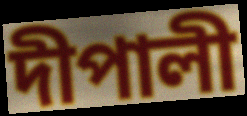
দীপালী